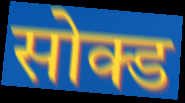
सोक्ड